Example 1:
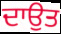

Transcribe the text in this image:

ਦਾਉਤ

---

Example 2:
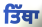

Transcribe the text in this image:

ਤਿੱਥਾ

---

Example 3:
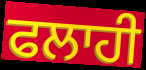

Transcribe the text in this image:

ਫਲਾਹੀ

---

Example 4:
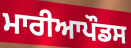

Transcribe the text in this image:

ਮਾਰੀਆਪੌਡਸ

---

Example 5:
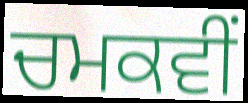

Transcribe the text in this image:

ਚਮਕਵੀਂ